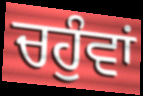
ਚਹੁੰਵਾਂ